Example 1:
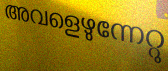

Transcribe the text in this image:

അവളെഴുന്നേറ്റു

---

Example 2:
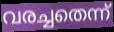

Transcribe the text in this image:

വരച്ചതെന്ന്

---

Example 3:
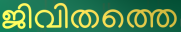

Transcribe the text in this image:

ജിവിതത്തെ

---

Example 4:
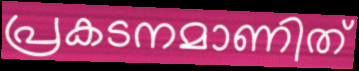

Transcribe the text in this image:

പ്രകടനമാണിത്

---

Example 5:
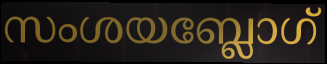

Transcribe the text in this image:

സംശയബ്ലോഗ്